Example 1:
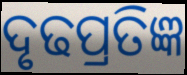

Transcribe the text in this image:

ଦୃଢପ୍ରତିଜ୍ଞ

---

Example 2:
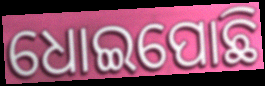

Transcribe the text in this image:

ଧୋଇପୋଛି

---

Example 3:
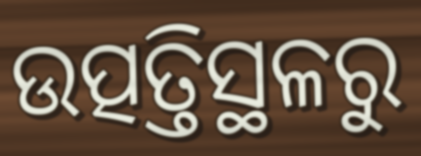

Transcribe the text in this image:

ଉତ୍ପତ୍ତିସ୍ଥଳରୁ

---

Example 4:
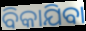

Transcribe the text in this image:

ବିକାଯିବା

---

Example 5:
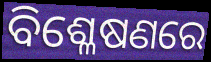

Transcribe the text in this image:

ବିଶ୍ଳେଷଣରେ